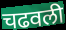
चढवली